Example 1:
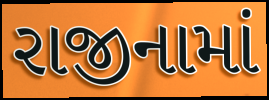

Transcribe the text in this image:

રાજીનામાં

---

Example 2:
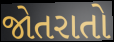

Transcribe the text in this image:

જોતરાતો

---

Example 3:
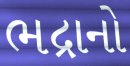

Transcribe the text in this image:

ભદ્રાનો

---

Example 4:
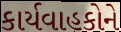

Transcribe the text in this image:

કાર્યવાહકોને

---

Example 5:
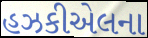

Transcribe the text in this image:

હઝકીએલના